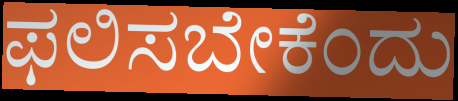
ಫಲಿಸಬೇಕೆಂದು